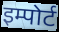
इम्पोर्ट